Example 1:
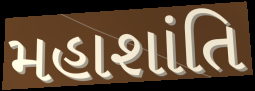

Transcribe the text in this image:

મહાશાંતિ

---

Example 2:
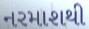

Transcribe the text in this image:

નરમાશથી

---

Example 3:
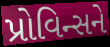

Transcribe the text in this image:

પ્રોવિન્સને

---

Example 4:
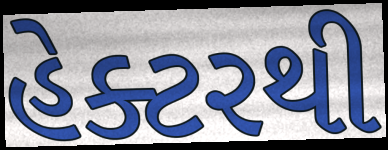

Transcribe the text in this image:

હેક્ટરથી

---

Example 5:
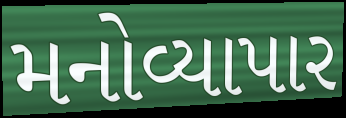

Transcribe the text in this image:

મનોવ્યાપાર